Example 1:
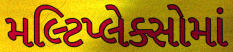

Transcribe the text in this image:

મલ્ટિપ્લેક્સોમાં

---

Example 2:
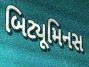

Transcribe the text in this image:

બિટ્યૂમિનસ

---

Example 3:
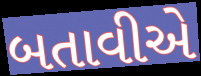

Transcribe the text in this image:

બતાવીએ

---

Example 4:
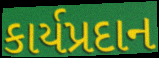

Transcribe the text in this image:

કાર્યપ્રદાન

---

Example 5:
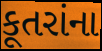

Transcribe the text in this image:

કૂતરાંના